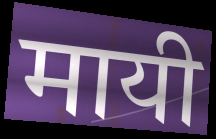
मायी